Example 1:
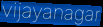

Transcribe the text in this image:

vijayanagar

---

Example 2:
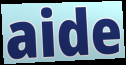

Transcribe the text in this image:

aide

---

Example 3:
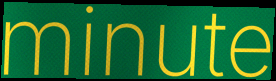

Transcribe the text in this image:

minute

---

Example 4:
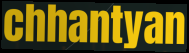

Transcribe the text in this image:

chhantyan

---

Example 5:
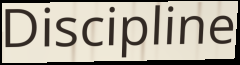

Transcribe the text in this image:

Discipline